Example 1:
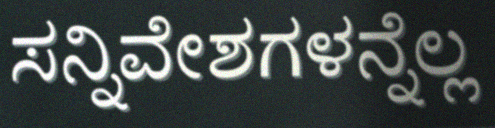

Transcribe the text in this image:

ಸನ್ನಿವೇಶಗಳನ್ನೆಲ್ಲ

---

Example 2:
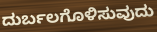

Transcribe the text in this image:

ದುರ್ಬಲಗೊಳಿಸುವುದು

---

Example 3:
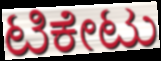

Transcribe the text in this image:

ಟಿಕೇಟು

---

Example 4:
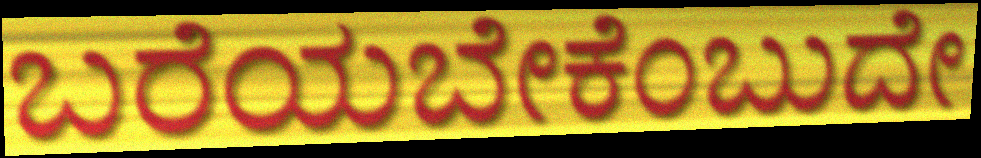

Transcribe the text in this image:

ಬರೆಯಬೇಕೆಂಬುದೇ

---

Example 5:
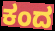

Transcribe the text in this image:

ಕಂದ